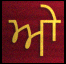
ਆੇ